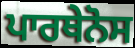
ਪਾਰਥੇਨੋਸ